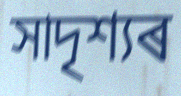
সাদৃশ্যৰ